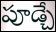
పూడ్చే